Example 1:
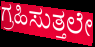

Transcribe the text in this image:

ಗ್ರಹಿಸುತ್ತಲೇ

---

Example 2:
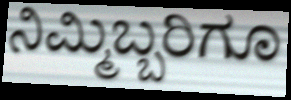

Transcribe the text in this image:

ನಿಮ್ಮಿಬ್ಬರಿಗೂ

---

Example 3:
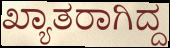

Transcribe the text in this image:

ಖ್ಯಾತರಾಗಿದ್ದ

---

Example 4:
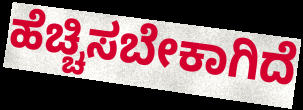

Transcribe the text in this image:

ಹೆಚ್ಚಿಸಬೇಕಾಗಿದೆ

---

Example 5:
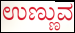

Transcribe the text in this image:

ಉಣ್ಣುವ